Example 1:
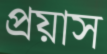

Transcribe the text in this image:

প্ৰয়াস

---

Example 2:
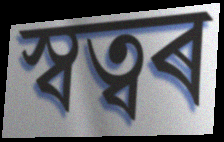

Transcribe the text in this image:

স্বত্বৰ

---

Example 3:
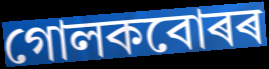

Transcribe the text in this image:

গোলকবোৰৰ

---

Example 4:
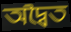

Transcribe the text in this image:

অদ্বৈত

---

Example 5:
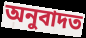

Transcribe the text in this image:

অনুবাদত